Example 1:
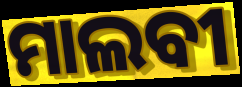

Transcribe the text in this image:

ମାଲବୀ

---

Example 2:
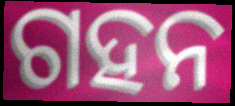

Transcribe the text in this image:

ଗହନ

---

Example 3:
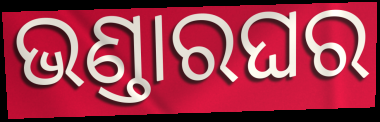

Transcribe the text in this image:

ଭଣ୍ଡାରଘର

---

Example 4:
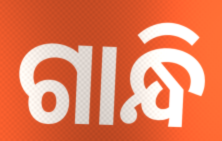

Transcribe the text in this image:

ଗାନ୍ଧି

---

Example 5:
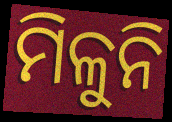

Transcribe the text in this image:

ମିଳୁନି